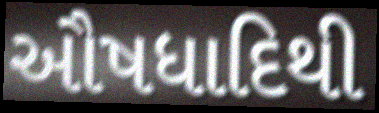
ઔષધાદિથી